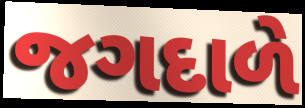
જગદાળે